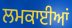
ਲਮਕਾਈਆਂ